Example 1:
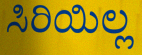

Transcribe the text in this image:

ಸಿರಿಯಿಲ್ಲ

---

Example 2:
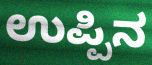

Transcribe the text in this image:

ಉಪ್ಪಿನ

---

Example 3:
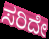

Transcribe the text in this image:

ಸರಿದೇ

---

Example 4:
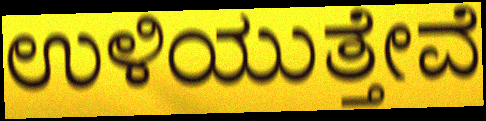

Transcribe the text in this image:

ಉಳಿಯುತ್ತೇವೆ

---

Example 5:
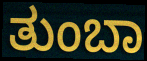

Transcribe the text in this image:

ತುಂಬಾ